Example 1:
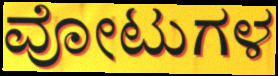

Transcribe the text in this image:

ವೋಟುಗಳ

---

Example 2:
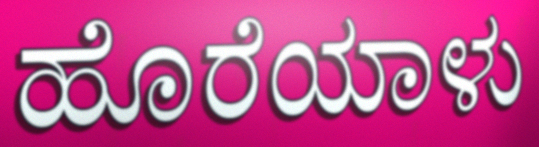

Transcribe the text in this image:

ಹೊರೆಯಾಳು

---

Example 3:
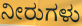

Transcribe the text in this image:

ನೀರುಗಳು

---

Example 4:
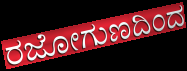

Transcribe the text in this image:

ರಜೋಗುಣದಿಂದ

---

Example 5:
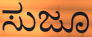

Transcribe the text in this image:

ಸುಜೂ